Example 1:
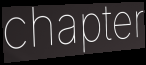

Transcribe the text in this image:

chapter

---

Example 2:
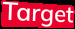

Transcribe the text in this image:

Target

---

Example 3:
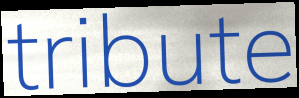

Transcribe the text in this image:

tribute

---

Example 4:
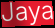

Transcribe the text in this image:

Jaya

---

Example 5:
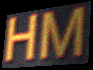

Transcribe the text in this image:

HM